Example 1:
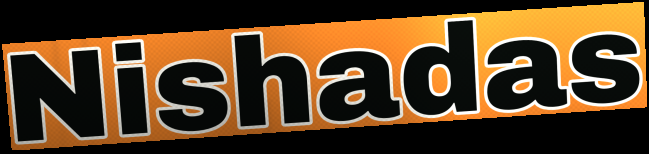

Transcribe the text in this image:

Nishadas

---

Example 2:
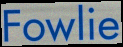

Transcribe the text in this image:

Fowlie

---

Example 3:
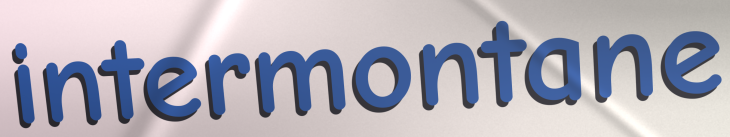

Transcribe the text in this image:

intermontane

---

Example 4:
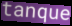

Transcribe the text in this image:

tanque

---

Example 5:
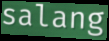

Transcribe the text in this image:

salang